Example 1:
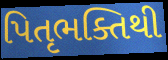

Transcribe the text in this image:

પિતૃભક્તિથી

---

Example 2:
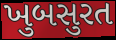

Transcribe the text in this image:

ખુબસુરત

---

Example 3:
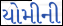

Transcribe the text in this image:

યોમીની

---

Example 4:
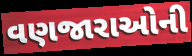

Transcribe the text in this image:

વણજારાઓની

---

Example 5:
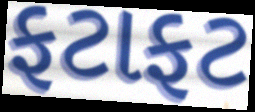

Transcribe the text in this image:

ફટાફટ